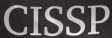
CISSP